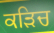
ਕੜਿਚ